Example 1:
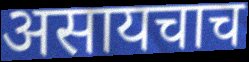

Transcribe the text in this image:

असायचाच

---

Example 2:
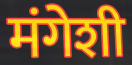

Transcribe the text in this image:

मंगेशी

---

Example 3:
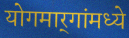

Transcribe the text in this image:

योगमार्गांमध्ये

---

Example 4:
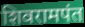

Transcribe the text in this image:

शिवरामपंत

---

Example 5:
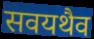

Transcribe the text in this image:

सवयथैव